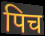
पिच